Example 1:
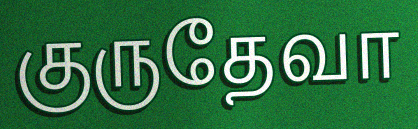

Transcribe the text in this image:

குருதேவா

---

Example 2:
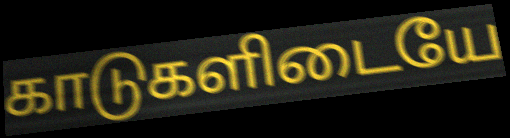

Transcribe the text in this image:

காடுகளிடையே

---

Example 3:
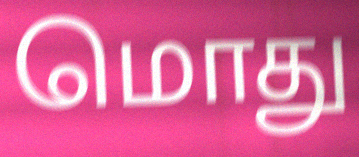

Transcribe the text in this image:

மொது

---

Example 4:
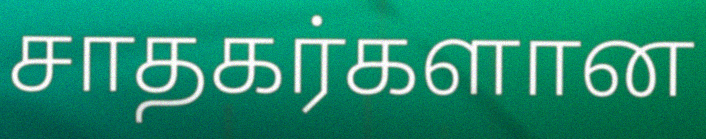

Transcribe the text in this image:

சாதகர்களான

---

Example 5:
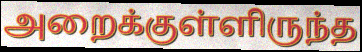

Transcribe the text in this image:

அறைக்குள்ளிருந்த